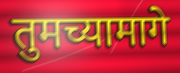
तुमच्यामागे